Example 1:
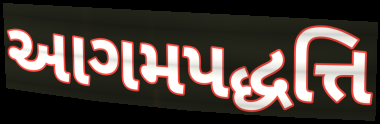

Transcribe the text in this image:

આગમપદ્ધત્તિ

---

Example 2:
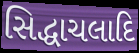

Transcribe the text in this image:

સિદ્ધાચલાદિ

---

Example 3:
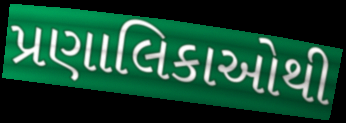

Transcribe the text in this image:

પ્રણાલિકાઓથી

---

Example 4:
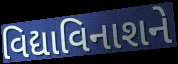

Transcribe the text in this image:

વિદ્યાવિનાશને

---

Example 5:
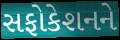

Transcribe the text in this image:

સફોકેશનને